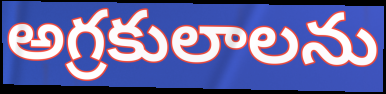
అగ్రకులాలను